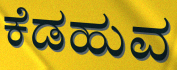
ಕೆಡಹುವ